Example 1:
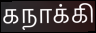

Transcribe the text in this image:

கநாக்கி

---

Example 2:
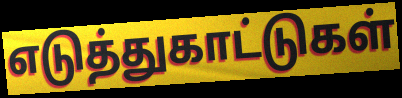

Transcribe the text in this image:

எடுத்துகாட்டுகள்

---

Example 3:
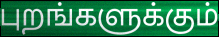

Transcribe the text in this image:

புறங்களுக்கும்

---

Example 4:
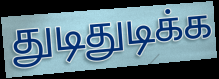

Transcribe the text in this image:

துடிதுடிக்க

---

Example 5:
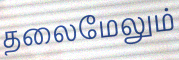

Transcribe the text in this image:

தலைமேலும்